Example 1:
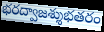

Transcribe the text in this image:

భరద్వాజశ్శుభతరం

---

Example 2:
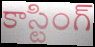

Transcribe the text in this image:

కాస్టింగ్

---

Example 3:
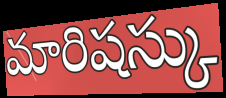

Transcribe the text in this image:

మారిషస్కు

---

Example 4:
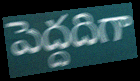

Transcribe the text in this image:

పెద్దదిగా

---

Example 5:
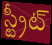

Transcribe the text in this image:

స్ట్రీట్